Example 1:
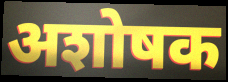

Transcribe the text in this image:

अशोषक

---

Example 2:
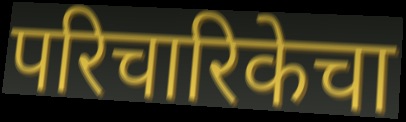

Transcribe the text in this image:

परिचारिकेचा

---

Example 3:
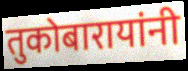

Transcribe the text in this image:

तुकोबारायांनी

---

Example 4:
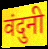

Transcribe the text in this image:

वंदुनी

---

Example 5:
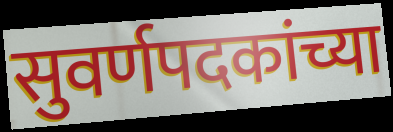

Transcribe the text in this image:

सुवर्णपदकांच्या